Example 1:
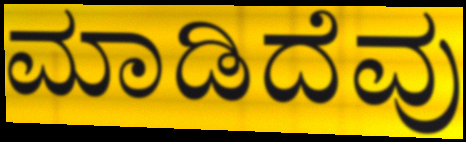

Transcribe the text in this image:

ಮಾಡಿದೆವು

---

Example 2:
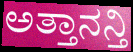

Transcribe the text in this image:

ಅತ್ತಾನನ್ತಿ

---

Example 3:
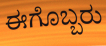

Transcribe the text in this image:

ಈಗೊಬ್ಬರು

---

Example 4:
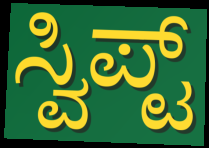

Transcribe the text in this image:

ಸ್ವಿಪ್ಟ್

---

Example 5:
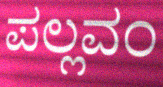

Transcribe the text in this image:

ಪಲ್ಲವಂ